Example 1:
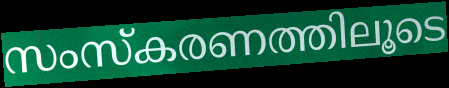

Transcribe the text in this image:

സംസ്കരണത്തിലൂടെ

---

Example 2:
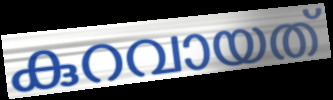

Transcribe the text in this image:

കുറവായത്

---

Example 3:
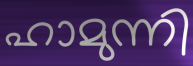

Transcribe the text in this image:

ഹാമുന്നി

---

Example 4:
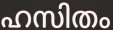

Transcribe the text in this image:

ഹസിതം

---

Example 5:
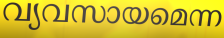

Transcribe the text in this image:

വ്യവസായമെന്ന